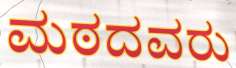
ಮಠದವರು